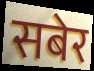
सबेर